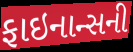
ફાઇનાન્સની